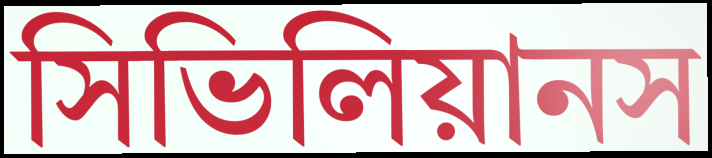
সিভিলিয়ানস